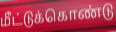
மீட்டுக்கொண்டு